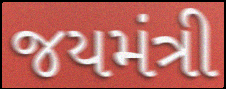
જયમંત્રી